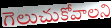
గెలుచుకోవాలని